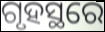
ଗୃହସ୍ଥରେ